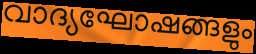
വാദ്യഘോഷങ്ങളും